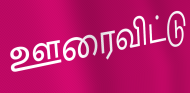
ஊரைவிட்டு